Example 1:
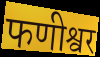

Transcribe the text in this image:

फणीश्वर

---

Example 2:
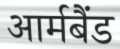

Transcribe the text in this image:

आर्मबैंड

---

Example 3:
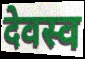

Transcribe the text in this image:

देवस्व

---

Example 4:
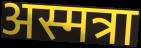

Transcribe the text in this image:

अस्मत्रा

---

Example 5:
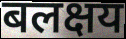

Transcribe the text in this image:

बलक्षय